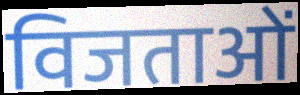
विजताओं